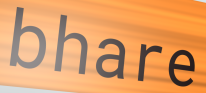
bhare